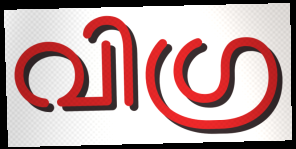
വിഗ്ര